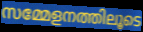
സമ്മേളനത്തിലൂടെ